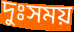
দুঃসময়